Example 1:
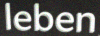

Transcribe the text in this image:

leben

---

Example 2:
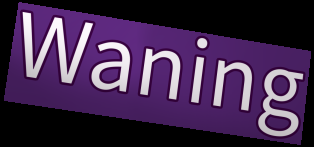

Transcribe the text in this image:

Waning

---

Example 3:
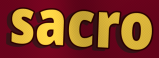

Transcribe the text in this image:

sacro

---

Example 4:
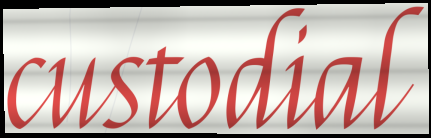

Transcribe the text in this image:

custodial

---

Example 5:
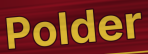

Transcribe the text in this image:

Polder